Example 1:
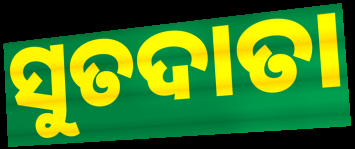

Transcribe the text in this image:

ସୁତଦାତା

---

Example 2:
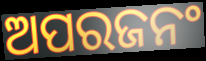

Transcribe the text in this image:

ଅପରଜନଂ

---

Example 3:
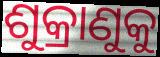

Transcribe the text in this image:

ଶୁକ୍ରାଣୁକୁ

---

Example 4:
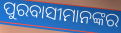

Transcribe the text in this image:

ପୁରବାସୀମାନଙ୍କର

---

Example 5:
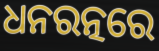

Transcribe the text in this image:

ଧନରତ୍ନରେ